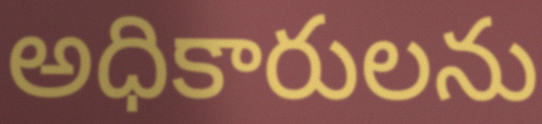
అధికారులను